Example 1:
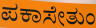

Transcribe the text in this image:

ಪಕಾಸೇತುಂ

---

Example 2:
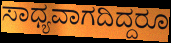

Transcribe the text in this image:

ಸಾಧ್ಯವಾಗದಿದ್ದರೂ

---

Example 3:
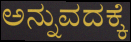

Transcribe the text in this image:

ಅನ್ನುವದಕ್ಕೆ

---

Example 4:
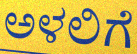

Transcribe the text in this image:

ಅಳಲಿಗೆ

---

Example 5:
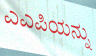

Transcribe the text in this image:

ಎಎಪಿಯನ್ನು